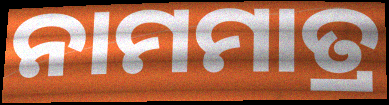
ନାମମାତ୍ର